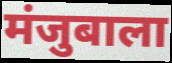
मंजुबाला